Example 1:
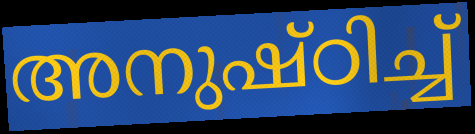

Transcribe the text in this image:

അനുഷ്ഠിച്ച്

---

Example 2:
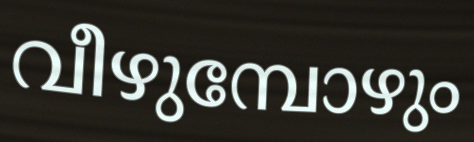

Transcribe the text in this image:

വീഴുമ്പോഴും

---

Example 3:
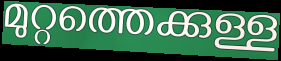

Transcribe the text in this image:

മുറ്റത്തെക്കുള്ള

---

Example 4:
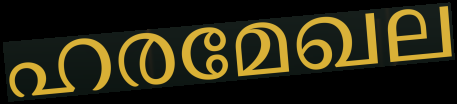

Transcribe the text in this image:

ഹരമേഖല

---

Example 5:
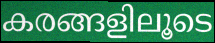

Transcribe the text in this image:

കരങ്ങളിലൂടെ